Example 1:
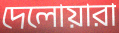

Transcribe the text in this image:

দেলোয়ারা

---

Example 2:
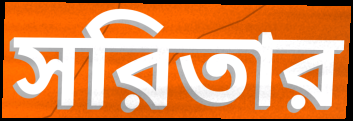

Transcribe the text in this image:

সরিতার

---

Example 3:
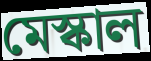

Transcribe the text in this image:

মেস্কাল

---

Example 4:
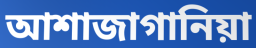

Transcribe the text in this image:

আশাজাগানিয়া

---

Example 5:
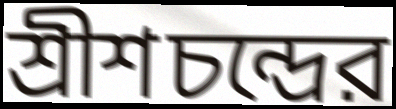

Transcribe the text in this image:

শ্রীশচন্দ্রের